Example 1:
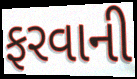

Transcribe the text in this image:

ફરવાની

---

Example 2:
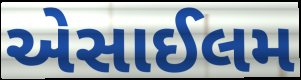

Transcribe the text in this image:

એસાઈલમ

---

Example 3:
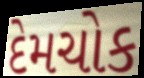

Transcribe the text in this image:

દેમચોક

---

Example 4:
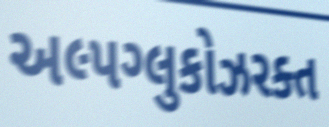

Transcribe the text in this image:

અલ્પગ્લુકોઝરક્ત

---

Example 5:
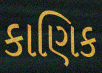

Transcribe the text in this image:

કાણિક